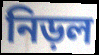
নিড়ল